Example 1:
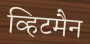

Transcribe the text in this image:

व्हिटमैन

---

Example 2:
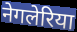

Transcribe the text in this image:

नेगलेरिया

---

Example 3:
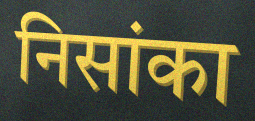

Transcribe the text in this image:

निसांका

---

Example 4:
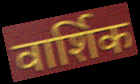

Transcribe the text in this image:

वार्शिक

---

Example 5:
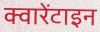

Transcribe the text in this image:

क्वारेंटाइन